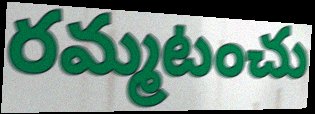
రమ్మటంచు